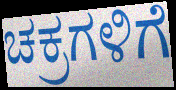
ಚಕ್ರಗಳಿಗೆ